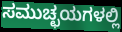
ಸಮುಚ್ಛಯಗಳಲ್ಲಿ